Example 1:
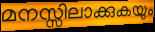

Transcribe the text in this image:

മനസ്സിലാക്കുകയും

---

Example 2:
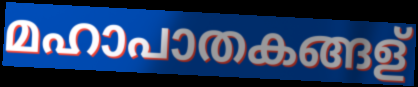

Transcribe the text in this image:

മഹാപാതകങ്ങള്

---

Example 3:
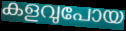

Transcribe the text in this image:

കളവുപോയ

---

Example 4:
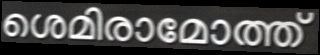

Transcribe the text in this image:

ശെമിരാമോത്ത്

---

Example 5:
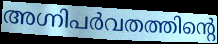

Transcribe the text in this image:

അഗ്നിപർവതത്തിന്റെ